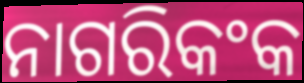
ନାଗରିକଂକ